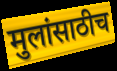
मुलांसाठीच